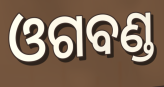
ଓଗବଣ୍ଡ